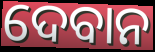
ଦେବାନ